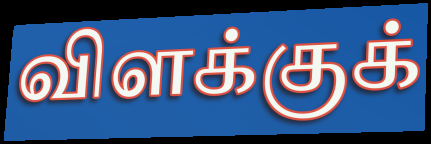
விளக்குக்